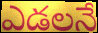
ఎడలనే